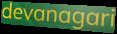
devanagari